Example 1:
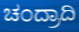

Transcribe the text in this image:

ಚಂದ್ರಾದಿ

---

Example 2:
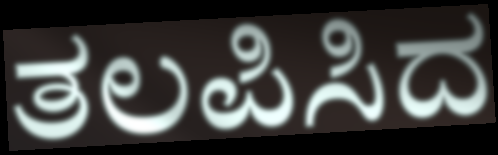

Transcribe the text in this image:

ತಲಪಿಸಿದ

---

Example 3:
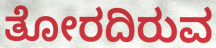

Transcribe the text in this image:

ತೋರದಿರುವ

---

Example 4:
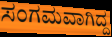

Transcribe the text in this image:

ಸಂಗಮವಾಗಿದ್ದ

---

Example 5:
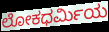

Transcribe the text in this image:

ಲೋಕಧರ್ಮಿಯ